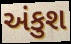
અંકુશ